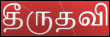
தீருதவி